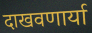
दाखवणार्या